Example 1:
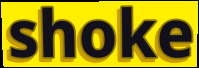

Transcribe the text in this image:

shoke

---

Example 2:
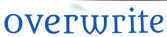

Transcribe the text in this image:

overwrite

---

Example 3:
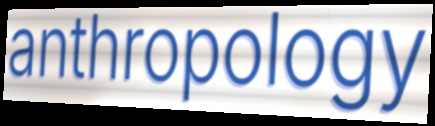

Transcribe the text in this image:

anthropology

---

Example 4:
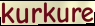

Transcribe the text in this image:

kurkure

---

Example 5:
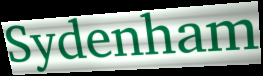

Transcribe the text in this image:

Sydenham